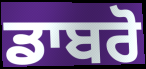
ਡਾਬਰੋ